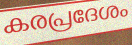
കരപ്രദേശം